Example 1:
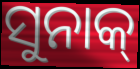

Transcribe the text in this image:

ସୁନାକ୍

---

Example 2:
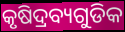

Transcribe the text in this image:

କୃଷିଦ୍ରବ୍ୟଗୁଡିକ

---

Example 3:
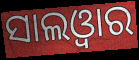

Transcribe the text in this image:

ସାଲଓ୍ଵାର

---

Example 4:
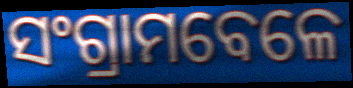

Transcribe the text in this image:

ସଂଗ୍ରାମବେଳେ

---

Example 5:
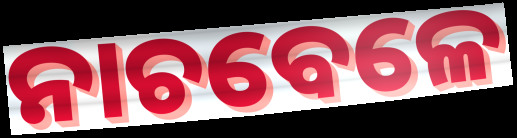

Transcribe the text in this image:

ନାଚବେଳେ